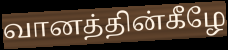
வானத்தின்கீழே